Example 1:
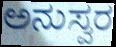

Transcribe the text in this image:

ಅನುಸ್ವರ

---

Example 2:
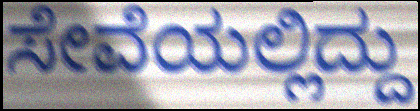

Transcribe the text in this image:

ಸೇವೆಯಲ್ಲಿದ್ದು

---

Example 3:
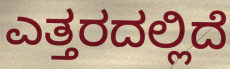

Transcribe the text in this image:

ಎತ್ತರದಲ್ಲಿದೆ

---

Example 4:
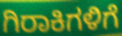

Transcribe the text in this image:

ಗಿರಾಕಿಗಳಿಗೆ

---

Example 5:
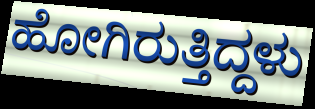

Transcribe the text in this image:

ಹೋಗಿರುತ್ತಿದ್ದಳು